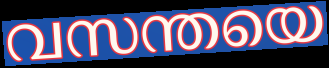
വസന്തയെ